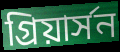
গ্রিয়ার্সন